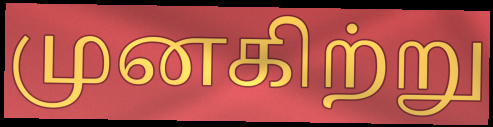
முனகிற்று